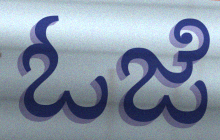
ಓಜೆ